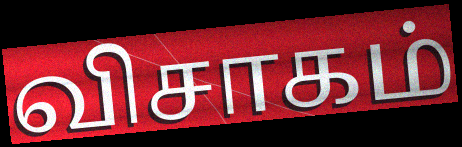
விசாகம்